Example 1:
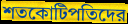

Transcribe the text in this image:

শতকোটিপতিদের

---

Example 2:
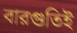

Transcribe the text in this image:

বারগুতিই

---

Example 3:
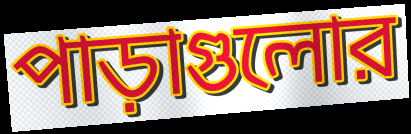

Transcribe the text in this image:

পাড়াগুলোর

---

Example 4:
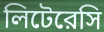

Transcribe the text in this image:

লিটেরেসি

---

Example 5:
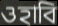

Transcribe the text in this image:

ওহাবি